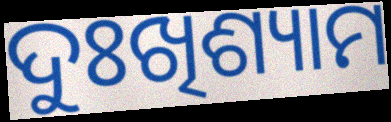
ଦୁଃଖିଶ୍ୟାମ